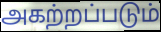
அகற்றப்படும்